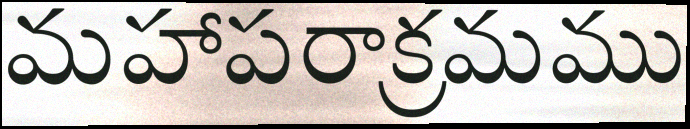
మహాపరాక్రమము